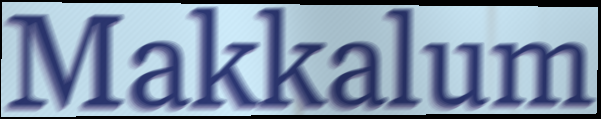
Makkalum